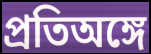
প্রতিঅঙ্গে